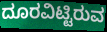
ದೂರವಿಟ್ಟಿರುವ